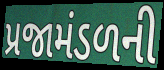
પ્રજામંડળની